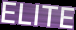
ELITE